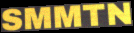
SMMTN